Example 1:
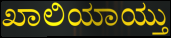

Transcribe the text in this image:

ಖಾಲಿಯಾಯ್ತು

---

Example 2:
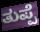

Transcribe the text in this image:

ತುಪ್ಪೆ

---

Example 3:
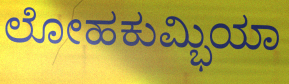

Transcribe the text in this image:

ಲೋಹಕುಮ್ಭಿಯಾ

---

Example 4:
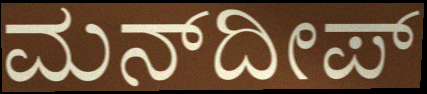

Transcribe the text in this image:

ಮನ್‍ದೀಪ್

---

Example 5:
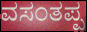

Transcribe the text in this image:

ವಸಂತಪ್ಪ